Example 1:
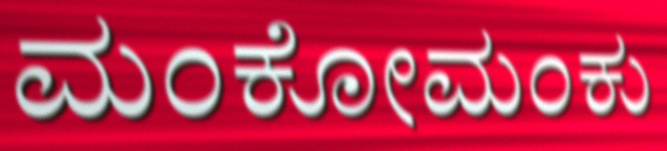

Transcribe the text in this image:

ಮಂಕೋಮಂಕು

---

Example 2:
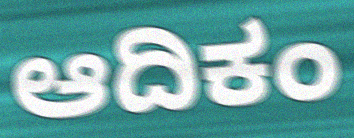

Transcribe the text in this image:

ಆದಿಕಂ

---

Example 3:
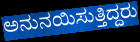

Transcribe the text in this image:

ಅನುನಯಿಸುತ್ತಿದ್ದರು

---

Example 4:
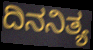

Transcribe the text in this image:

ದಿನನಿತ್ಯ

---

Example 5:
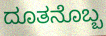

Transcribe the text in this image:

ದೂತನೊಬ್ಬ